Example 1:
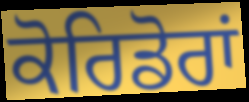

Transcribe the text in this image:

ਕੋਰਿਡੋਰਾਂ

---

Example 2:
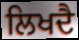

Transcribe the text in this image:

ਲਿਖਦੈ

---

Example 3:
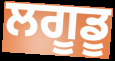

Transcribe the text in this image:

ਲਗੂਡੂ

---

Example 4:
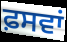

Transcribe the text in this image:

ਫ਼ਸਵਾਂ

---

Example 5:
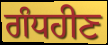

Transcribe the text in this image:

ਗੰਧਹੀਣ